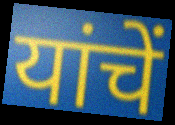
यांचें